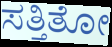
ಸತ್ತಿತೋ